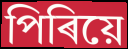
পিৰিয়ে